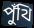
পুঁথি